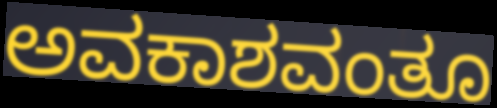
ಅವಕಾಶವಂತೂ